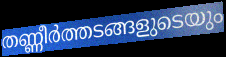
തണ്ണീർത്തടങ്ങളുടെയും